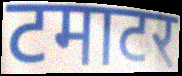
टमाटर